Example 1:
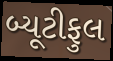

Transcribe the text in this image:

બ્યૂટીફુલ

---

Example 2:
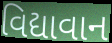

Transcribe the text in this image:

વિદ્યાવાન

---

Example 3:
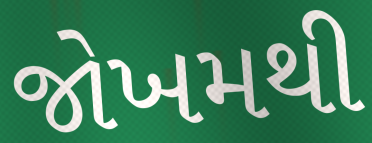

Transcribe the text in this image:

જોખમથી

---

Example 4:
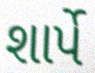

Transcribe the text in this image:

શાર્પે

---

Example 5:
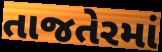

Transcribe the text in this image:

તાજતેરમાં